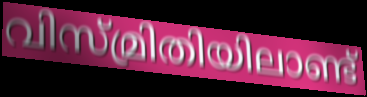
വിസ്മ്രിതിയിലാണ്ട്